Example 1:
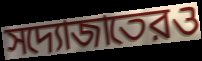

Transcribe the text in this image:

সদ্যোজাতেরও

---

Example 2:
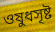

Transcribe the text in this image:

ওষুধসৃষ্ট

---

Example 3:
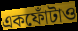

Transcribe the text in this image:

একফোঁটাও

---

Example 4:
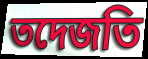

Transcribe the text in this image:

তদেজতি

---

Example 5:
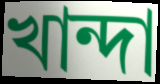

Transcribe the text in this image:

খান্দা